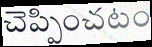
చెప్పించటం